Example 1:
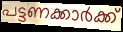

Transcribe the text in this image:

പട്ടണക്കാർക്ക്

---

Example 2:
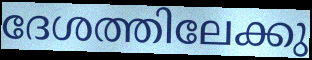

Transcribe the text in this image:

ദേശത്തിലേക്കു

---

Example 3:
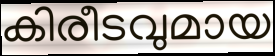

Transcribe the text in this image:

കിരീടവുമായ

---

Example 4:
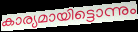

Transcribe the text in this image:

കാര്യമായിട്ടൊന്നും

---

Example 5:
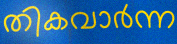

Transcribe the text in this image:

തികവാർന്ന